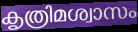
കൃത്രിമശ്വാസം